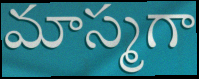
మాస్మగా